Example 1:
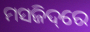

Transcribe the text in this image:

ମସଜିଦ୍‌ରେ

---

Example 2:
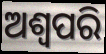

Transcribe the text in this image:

ଅଶ୍ୱପରି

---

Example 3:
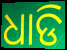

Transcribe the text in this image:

ଧାଡି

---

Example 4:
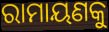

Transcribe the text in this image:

ରାମାୟଣକୁ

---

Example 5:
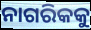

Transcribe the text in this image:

ନାଗରିକକୁ